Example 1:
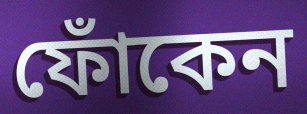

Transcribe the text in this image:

ফোঁকেন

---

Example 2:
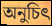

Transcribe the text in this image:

অনুচিৎ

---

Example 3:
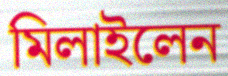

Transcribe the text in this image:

মিলাইলেন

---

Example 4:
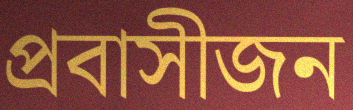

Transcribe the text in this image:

প্রবাসীজন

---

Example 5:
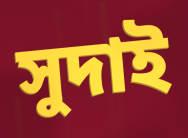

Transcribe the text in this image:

সুদাই